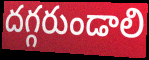
దగ్గరుండాలి